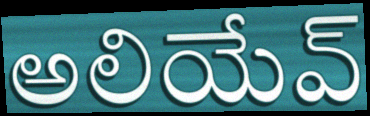
అలియేవ్